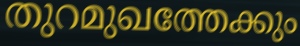
തുറമുഖത്തേക്കും